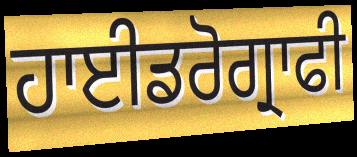
ਹਾਈਡਰੋਗ੍ਰਾਫੀ